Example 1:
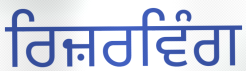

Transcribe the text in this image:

ਰਿਜ਼ਰਵਿੰਗ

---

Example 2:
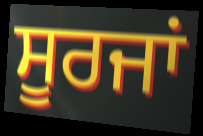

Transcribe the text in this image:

ਸੂਰਜਾਂ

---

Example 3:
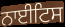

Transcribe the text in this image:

ਨਾਈਟਿਸ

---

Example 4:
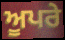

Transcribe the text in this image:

ਅੂਪਰੇ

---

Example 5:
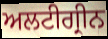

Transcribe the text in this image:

ਅਲਟੀਗ੍ਰੀਨ